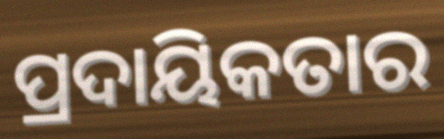
ପ୍ରଦାୟିକତାର